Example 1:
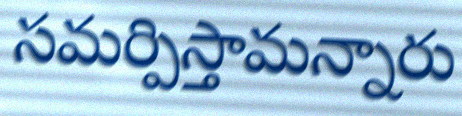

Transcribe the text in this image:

సమర్పిస్తామన్నారు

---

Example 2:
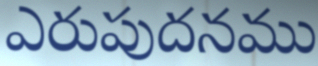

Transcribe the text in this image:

ఎరుపుదనము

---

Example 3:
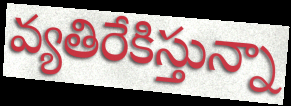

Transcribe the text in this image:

వ్యతిరేకిస్తున్నా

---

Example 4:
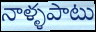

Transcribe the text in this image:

నాళ్ళపాటు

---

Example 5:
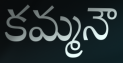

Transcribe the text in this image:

కమ్మనౌ